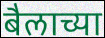
बैलाच्या